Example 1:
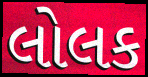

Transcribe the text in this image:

લોલક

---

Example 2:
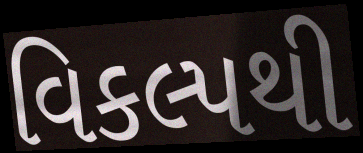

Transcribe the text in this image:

વિકલ્પથી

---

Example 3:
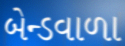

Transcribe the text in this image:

બેન્ડવાળા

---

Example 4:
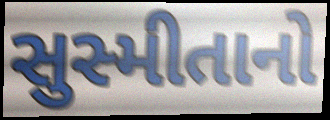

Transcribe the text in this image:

સુસ્મીતાનો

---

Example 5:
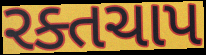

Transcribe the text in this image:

રક્તચાપ